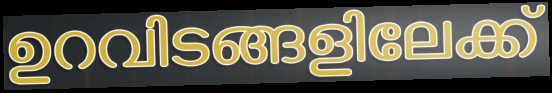
ഉറവിടങ്ങളിലേക്ക്